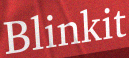
Blinkit